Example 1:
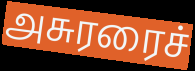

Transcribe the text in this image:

அசுரரைச்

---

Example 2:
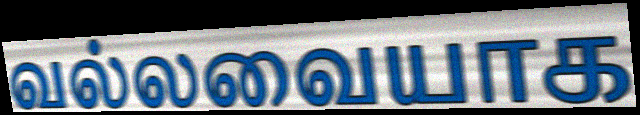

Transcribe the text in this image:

வல்லவையாக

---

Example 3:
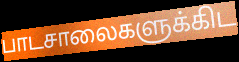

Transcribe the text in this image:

பாடசாலைகளுக்கிட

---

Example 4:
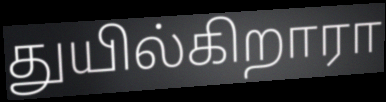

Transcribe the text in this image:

துயில்கிறாரா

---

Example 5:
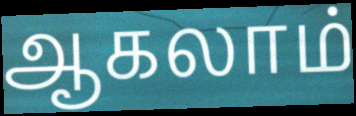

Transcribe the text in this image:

ஆகலாம்